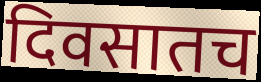
दिवसातच